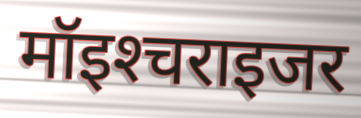
मॉइश्‍चराइजर